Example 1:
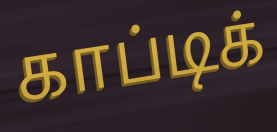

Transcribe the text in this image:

காப்டிக்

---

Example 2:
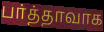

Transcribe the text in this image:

பர்த்தாவாக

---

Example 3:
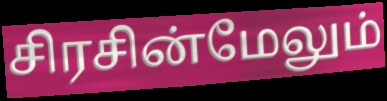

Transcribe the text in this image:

சிரசின்மேலும்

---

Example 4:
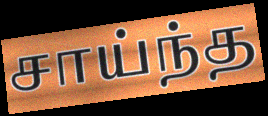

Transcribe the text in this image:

சாய்ந்த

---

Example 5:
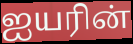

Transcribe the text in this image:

ஐயரின்